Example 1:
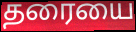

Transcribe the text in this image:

தரையை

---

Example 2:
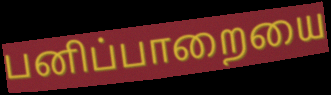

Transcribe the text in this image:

பனிப்பாறையை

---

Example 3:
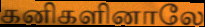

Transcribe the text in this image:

கனிகளினாலே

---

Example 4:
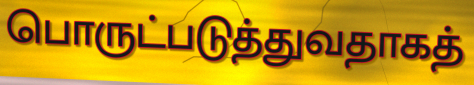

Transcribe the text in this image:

பொருட்படுத்துவதாகத்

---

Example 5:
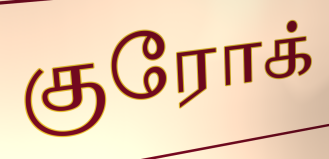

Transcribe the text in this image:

குரோக்